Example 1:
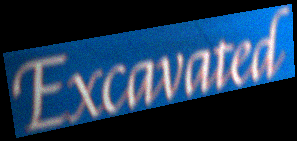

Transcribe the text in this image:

Excavated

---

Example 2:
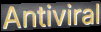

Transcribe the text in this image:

Antiviral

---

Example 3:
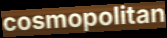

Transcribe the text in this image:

cosmopolitan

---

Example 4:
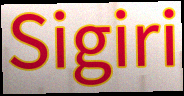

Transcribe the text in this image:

Sigiri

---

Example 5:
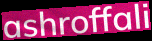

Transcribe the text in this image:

ashroffali